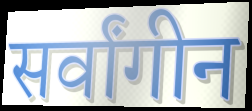
सर्वांगीन